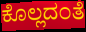
ಕೊಲ್ಲದಂತೆ